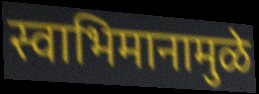
स्वाभिमानामुळे